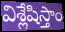
విశ్లేషిస్తాం